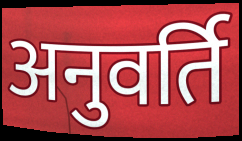
अनुवर्ति